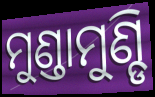
ମୁଣ୍ଡାମୁଣ୍ଡି